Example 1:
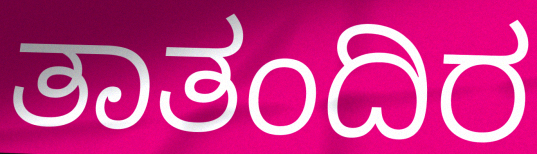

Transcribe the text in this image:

ತಾತಂದಿರ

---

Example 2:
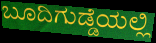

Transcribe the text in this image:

ಬೂದಿಗುಡ್ಡೆಯಲ್ಲಿ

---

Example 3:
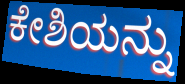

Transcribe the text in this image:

ಕೇಶಿಯನ್ನು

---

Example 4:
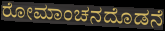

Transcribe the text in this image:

ರೋಮಾಂಚನದೊಡನೆ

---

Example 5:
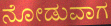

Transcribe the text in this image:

ನೋಡುವಾಗ